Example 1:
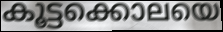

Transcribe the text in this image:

കൂട്ടക്കൊലയെ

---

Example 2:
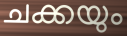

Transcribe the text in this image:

ചക്കയും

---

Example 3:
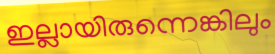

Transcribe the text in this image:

ഇല്ലായിരുന്നെങ്കിലും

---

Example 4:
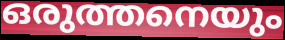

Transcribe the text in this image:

ഒരുത്തനെയും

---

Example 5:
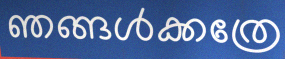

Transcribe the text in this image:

ഞങ്ങൾക്കത്രേ